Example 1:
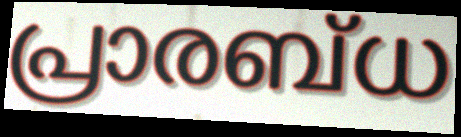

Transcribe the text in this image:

പ്രാരബ്ധ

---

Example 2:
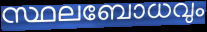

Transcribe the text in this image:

സ്ഥലബോധവും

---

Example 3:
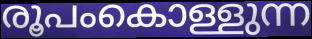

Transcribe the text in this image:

രൂപംകൊള്ളുന്ന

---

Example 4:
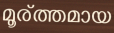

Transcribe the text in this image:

മൂര്ത്തമായ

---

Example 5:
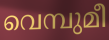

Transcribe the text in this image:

വെമ്പുമീ